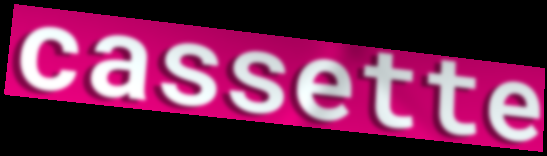
cassette